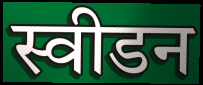
स्वीडन